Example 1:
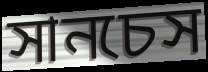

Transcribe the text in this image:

সানচেস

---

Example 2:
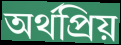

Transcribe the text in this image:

অর্থপ্রিয়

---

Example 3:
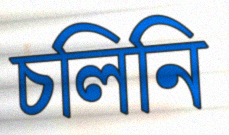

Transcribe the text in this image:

চলিনি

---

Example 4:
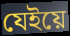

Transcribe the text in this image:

যেইয়ে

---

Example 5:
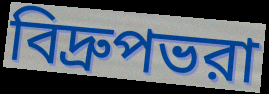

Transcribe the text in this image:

বিদ্রুপভরা